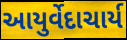
આયુર્વેદાચાર્ય